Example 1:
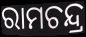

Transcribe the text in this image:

ରାମଚନ୍ଦ୍ର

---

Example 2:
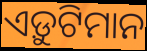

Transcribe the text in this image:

ଏଡ଼ୁଟିମାନ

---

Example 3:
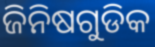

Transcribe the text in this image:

ଜିନିଷଗୁଡିକ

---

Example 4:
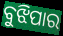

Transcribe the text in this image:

ବୁଝିପାର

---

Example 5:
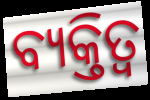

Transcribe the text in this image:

ବ୍ୟକ୍ତିତ୍ଵ